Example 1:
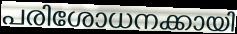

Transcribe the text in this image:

പരിശോധനക്കായി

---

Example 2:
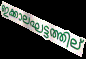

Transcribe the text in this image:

ഇക്കാലഘട്ടത്തില്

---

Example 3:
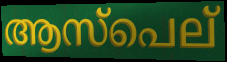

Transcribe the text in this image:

ആസ്പെല്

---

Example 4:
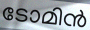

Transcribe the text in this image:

ടോമിൻ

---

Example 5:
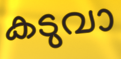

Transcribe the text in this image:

കടുവാ